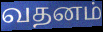
வதனம்